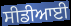
ਸੀਡੀਆਈ